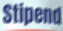
Stipend